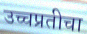
उच्चप्रतीचा